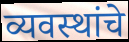
व्यवस्थांचे